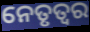
ନେତୃତ୍ଵର